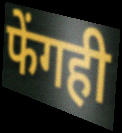
फेंगही